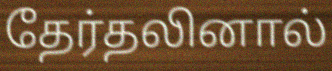
தேர்தலினால்